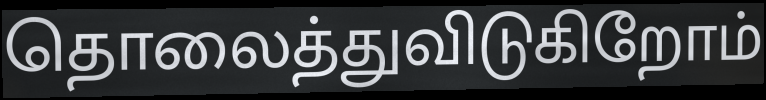
தொலைத்துவிடுகிறோம்